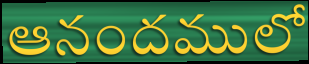
ఆనందములో